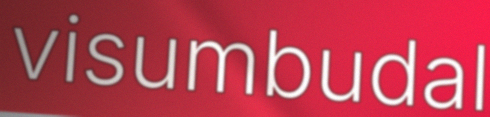
visumbudal